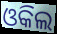
ଓକିଲ